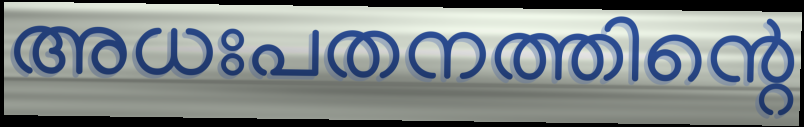
അധഃപതനത്തിന്റെ